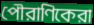
পৌরাণিকেরা